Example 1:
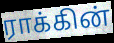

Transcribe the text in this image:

ராக்கின்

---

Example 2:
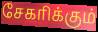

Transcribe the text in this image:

சேகரிக்கும்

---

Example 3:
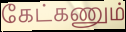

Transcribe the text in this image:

கேட்கணும்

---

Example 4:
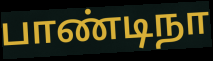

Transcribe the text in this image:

பாண்டிநா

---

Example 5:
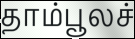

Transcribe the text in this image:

தாம்பூலச்